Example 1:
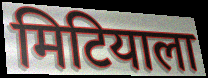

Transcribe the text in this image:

मिटियाला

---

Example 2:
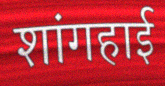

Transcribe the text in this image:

शांगहाई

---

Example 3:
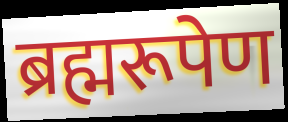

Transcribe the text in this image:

ब्रह्मरूपेण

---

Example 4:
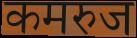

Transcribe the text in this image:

कमरुज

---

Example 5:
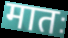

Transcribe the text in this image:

मातः